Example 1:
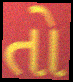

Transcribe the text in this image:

તો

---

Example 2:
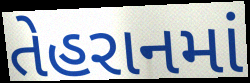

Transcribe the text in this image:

તેહરાનમાં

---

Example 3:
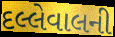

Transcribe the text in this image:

દલ્લેવાલની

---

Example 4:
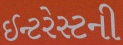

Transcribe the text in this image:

ઈન્ટરેસ્ટની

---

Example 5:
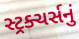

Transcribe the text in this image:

સ્ટ્રક્ચર્સનું